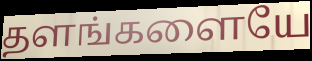
தளங்களையே